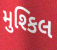
મુશ્કિલ